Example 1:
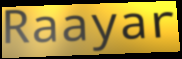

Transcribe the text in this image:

Raayar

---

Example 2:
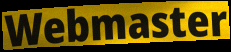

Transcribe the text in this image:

Webmaster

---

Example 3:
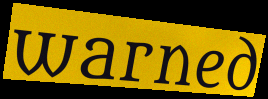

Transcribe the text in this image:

warned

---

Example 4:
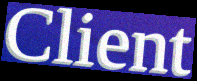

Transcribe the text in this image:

Client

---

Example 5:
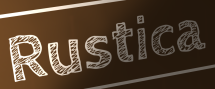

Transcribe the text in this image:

Rustica